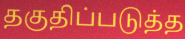
தகுதிப்படுத்த